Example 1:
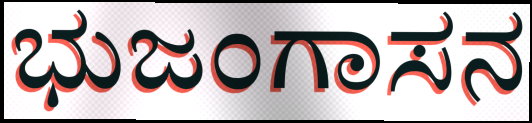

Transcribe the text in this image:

ಭುಜಂಗಾಸನ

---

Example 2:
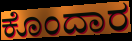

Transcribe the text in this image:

ಕೊಂದಾರ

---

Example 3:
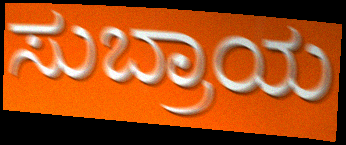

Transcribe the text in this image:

ಸುಬ್ರಾಯ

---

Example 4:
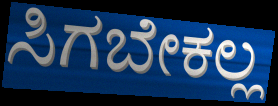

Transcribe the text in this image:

ಸಿಗಬೇಕಲ್ಲ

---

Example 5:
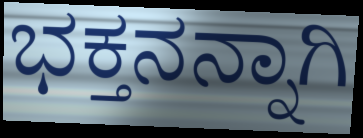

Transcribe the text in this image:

ಭಕ್ತನನ್ನಾಗಿ